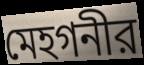
মেহগনীর